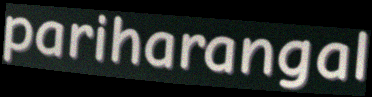
pariharangal